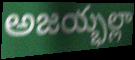
అజయ్భల్లా